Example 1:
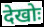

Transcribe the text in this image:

देखोः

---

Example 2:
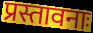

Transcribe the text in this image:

प्रस्तावनाः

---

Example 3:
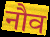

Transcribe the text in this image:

नौव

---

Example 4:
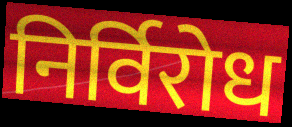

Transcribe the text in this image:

निर्विरोध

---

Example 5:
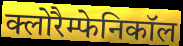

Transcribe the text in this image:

क्लोरैम्फेनिकॉल